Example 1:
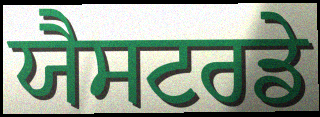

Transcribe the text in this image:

ਯੈਸਟਰਡੇ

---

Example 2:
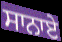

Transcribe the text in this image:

ਸਾਨਾਏ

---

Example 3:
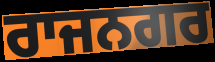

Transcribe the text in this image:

ਰਾਜਨਗਰ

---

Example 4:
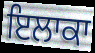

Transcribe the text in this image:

ਇਲਾਕਾ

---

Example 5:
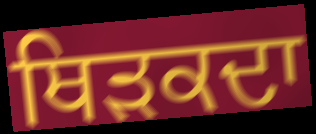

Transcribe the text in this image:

ਥਿੜਕਦਾ